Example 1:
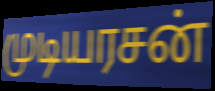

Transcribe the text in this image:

முடியரசன்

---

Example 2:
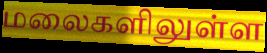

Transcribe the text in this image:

மலைகளிலுள்ள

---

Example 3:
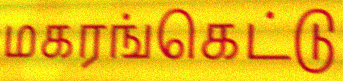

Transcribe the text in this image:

மகரங்கெட்டு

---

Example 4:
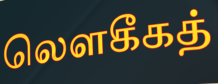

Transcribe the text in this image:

லௌகீகத்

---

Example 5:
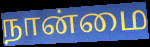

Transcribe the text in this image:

நான்மை